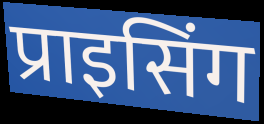
प्राइसिंग